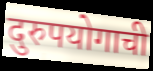
दुरुपयोगाची